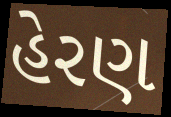
હેરણ